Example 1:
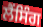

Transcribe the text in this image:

ਲੈਂਸਿੰਗ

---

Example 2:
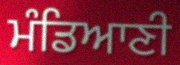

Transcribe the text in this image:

ਮੰਡਿਆਣੀ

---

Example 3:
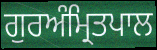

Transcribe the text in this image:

ਗੁਰਅੰਮ੍ਰਿਤਪਾਲ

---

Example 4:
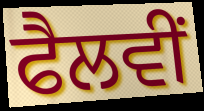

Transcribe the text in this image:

ਫੈਲਵੀਂ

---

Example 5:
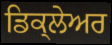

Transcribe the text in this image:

ਡਿਕ੍ਲੇਅਰ